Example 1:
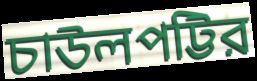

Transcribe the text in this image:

চাউলপট্টির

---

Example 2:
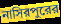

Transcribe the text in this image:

নাসিরপুরের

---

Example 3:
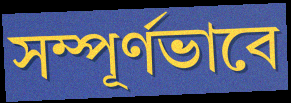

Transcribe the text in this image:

সম্পূর্ণভাবে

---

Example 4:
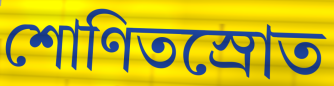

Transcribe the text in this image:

শোণিতস্রোত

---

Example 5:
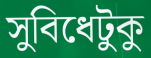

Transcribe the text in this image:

সুবিধেটুকু